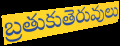
బ్రతుకుతెరువులు